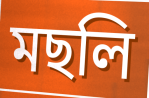
মছলি